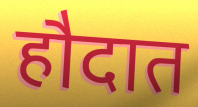
हौदात